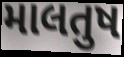
માલતુષ